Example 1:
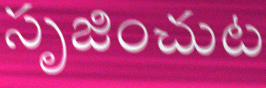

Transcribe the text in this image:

సృజించుట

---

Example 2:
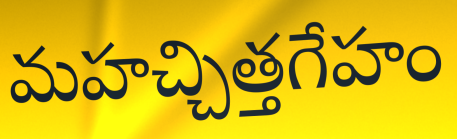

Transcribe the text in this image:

మహచ్చిత్తగేహం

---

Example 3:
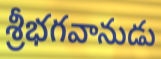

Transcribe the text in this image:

శ్రీభగవానుడు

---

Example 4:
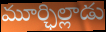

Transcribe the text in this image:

మూర్ఛిల్లాడు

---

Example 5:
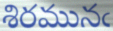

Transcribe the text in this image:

శిరమునఁ